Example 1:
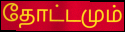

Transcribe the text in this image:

தோட்டமும்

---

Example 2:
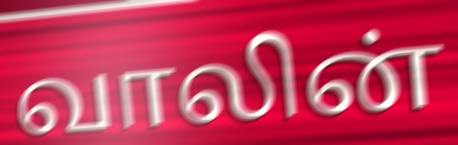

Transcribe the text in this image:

வாலின்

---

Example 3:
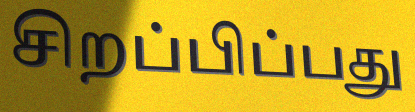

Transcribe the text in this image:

சிறப்பிப்பது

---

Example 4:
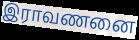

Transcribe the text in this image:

இராவணனை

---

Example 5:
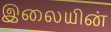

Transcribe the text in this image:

இலையின்